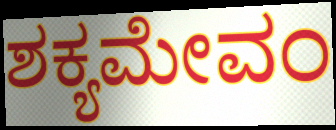
ಶಕ್ಯಮೇವಂ